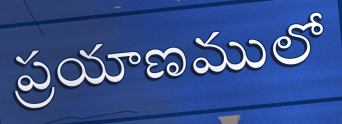
ప్రయాణములో